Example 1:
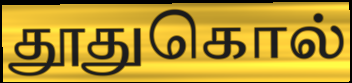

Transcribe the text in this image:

தூதுகொல்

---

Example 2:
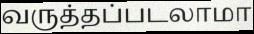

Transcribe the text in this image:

வருத்தப்படலாமா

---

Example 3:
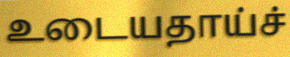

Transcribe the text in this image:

உடையதாய்ச்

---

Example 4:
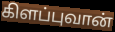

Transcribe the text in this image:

கிளப்புவான்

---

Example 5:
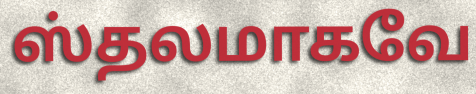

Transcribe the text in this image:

ஸ்தலமாகவே